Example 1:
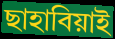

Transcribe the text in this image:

ছাহাবিয়াই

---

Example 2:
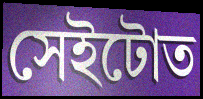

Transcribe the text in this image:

সেইটোত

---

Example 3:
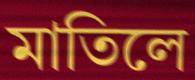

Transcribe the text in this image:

মাতিলে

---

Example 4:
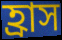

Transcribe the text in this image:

হ্ৰাস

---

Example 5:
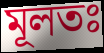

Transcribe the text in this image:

মূলতঃ